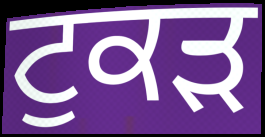
ਟੁਕੜ